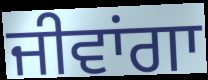
ਜੀਵਾਂਗਾ